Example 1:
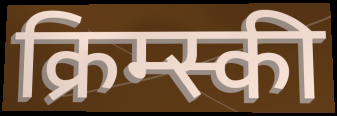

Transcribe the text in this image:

क्रिम्स्की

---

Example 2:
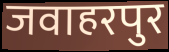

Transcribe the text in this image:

जवाहरपुर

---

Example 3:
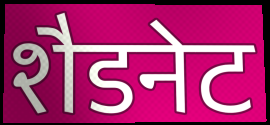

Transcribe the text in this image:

शैडनेट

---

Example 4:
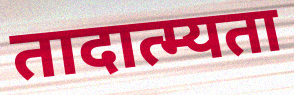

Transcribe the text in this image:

तादात्म्यता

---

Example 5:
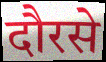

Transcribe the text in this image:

दौरसे